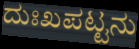
ದುಃಖಪಟ್ಟನು